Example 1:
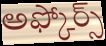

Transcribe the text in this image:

అఫ్కోర్స్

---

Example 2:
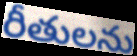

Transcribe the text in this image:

రీతులను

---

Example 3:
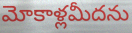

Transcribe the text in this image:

మోకాళ్లమీదను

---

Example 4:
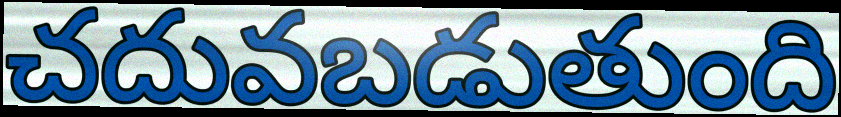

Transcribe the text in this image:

చదువబడుతుంది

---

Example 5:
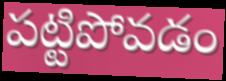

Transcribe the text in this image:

పట్టిపోవడం